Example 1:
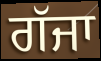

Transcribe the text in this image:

ਗੱਜਾ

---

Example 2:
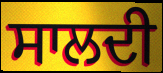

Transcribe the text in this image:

ਸਾਲਦੀ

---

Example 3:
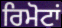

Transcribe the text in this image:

ਰਿਮੋਟਾਂ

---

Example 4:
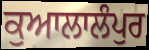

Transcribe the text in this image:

ਕੁਆਲਾਲੰਪੁਰ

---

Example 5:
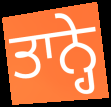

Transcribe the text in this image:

ਤਾਨ੍ਹੇ